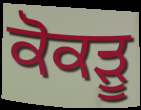
ਕੋਕੜੂ